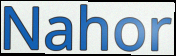
Nahor